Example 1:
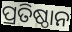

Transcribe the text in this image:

ପ୍ରତିଷ୍ଠାନ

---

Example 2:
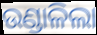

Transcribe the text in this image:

ଉଣ୍ଡାଳିଲା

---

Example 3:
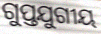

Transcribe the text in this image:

ଗୁପ୍ତଯୁଗୀୟ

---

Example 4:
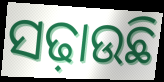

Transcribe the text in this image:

ସଢ଼ାଉଛି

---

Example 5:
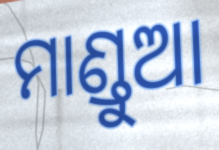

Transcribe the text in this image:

ମାଣ୍ଡୁଆ